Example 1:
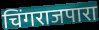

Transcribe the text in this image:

चिंगराजपारा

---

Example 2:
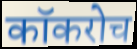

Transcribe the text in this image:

कॉकरोच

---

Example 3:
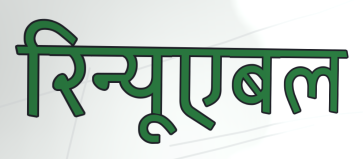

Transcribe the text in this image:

रिन्यूएबल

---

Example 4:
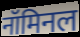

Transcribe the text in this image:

नॉमिनल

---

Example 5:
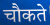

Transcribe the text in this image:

चौकते